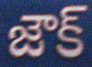
జౌక్